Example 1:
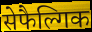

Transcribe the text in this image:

सेफैल्गिक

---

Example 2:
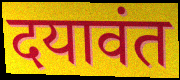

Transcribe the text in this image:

दयावंत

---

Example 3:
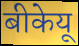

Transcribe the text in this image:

बीकेयू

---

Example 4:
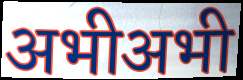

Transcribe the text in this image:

अभीअभी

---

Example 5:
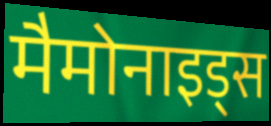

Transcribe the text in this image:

मैमोनाइड्स